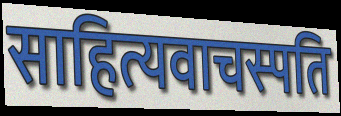
साहित्यवाचस्पति